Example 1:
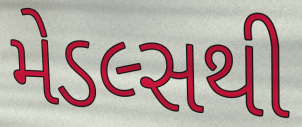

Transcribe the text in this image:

મેડલ્સથી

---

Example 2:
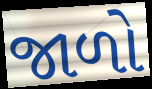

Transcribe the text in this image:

જાળો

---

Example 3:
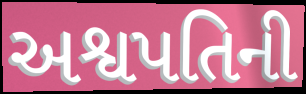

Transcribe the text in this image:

અશ્વપતિની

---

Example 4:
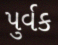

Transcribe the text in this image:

પુર્વક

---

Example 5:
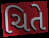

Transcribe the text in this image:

ચિતે